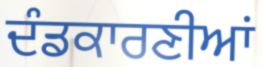
ਦੰਡਕਾਰਣੀਆਂ